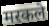
मरकले